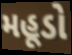
મહૂડો